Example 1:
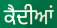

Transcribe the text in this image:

ਕੈਦੀਆਂ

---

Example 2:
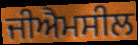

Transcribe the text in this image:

ਜੀਐਮਸੀਲ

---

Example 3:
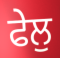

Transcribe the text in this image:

ਫੇਲੁ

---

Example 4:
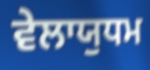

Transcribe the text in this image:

ਵੇਲਾਯੁਧਮ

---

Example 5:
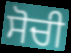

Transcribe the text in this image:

ਸੋਚੀ